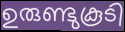
ഉരുണ്ടുകൂടി